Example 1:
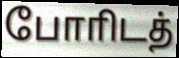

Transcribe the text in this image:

போரிடத்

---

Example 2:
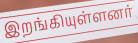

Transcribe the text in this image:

இறங்கியுள்ளனர்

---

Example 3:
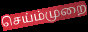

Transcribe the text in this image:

செய்ம்முறை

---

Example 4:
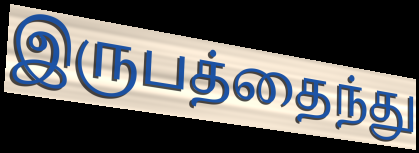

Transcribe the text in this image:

இருபத்தைந்து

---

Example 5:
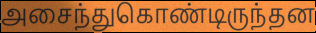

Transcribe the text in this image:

அசைந்துகொண்டிருந்தன